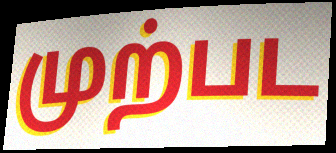
முற்பட